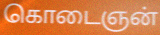
கொடைஞன்